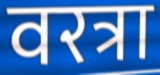
वरत्रा